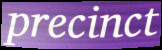
precinct